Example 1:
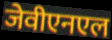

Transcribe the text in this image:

जेवीएनएल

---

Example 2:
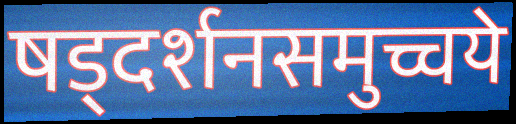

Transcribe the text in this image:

षड्दर्शनसमुच्चये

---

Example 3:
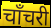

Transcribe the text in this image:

चाँचरी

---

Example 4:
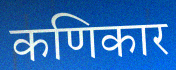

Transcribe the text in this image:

कणिकार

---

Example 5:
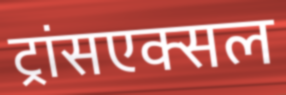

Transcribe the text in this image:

ट्रांसएक्सल